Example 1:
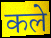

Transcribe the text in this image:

कले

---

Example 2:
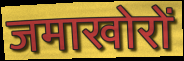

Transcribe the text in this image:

जमाखोरों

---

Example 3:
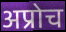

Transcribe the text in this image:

अप्रोच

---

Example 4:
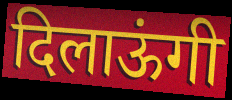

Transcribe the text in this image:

दिलाऊंगी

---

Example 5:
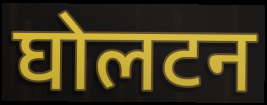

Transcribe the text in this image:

घोलटन